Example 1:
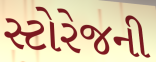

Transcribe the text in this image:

સ્ટોરેજની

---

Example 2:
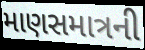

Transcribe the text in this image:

માણસમાત્રની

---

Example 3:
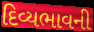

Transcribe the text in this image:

દિવ્યભાવની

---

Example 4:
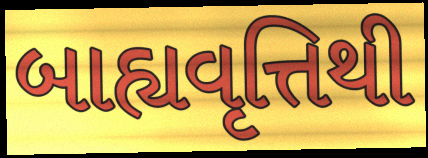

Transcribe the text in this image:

બાહ્યવૃત્તિથી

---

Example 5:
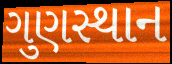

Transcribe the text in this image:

ગુણસ્થાન